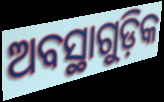
ଅବସ୍ଥାଗୁଡ଼ିକ